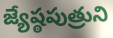
జ్యేష్ఠపుత్రుని